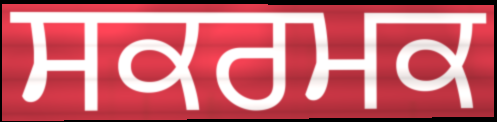
ਸਕਰਮਕ